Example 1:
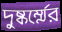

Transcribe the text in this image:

দুষ্কর্ম্মের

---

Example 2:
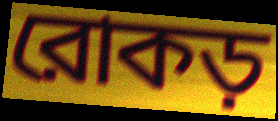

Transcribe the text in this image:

রোকড়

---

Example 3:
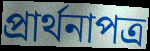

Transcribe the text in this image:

প্রার্থনাপত্র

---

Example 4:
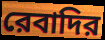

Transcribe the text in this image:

রেবাদির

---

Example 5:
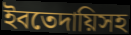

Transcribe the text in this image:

ইবতেদায়িসহ